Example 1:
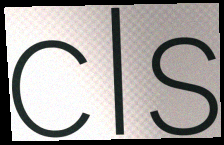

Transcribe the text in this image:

cls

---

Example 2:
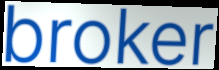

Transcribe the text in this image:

broker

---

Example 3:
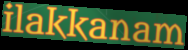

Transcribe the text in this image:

ilakkanam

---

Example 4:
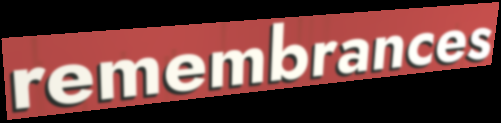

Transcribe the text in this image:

remembrances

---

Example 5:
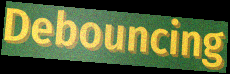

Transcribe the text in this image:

Debouncing